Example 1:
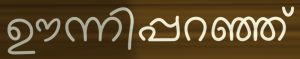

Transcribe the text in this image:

ഊന്നിപ്പറഞ്ഞ്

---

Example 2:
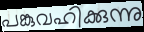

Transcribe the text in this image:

പങ്കുവഹിക്കുന്നു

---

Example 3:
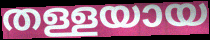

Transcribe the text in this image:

തള്ളയായ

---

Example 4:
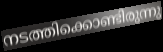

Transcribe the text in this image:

നടത്തിക്കൊണ്ടിരുന്നു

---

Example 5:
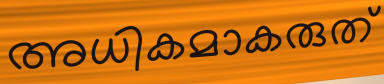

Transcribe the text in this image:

അധികമാകരുത്